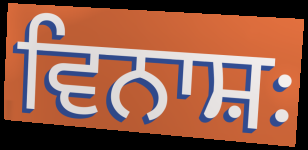
ਵਿਨਾਸ਼ਃ